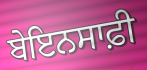
ਬੇਇਨਸਾਫ਼ੀ